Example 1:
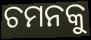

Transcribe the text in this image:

ଚମନକୁ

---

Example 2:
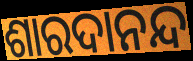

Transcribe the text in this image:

ଶାରଦାନନ୍ଦ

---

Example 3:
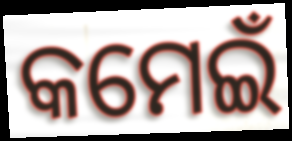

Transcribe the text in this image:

କମେଇଁ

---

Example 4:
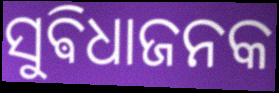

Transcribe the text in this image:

ସୁଵିଧାଜନକ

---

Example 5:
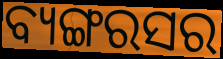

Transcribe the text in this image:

ବ୍ୟଙ୍ଗରସର